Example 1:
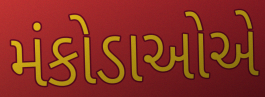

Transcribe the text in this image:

મંકોડાઓએ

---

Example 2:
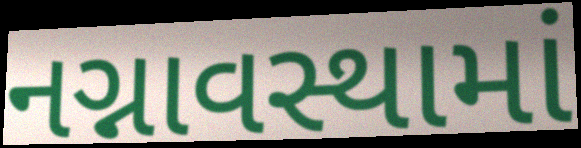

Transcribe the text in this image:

નગ્નાવસ્થામાં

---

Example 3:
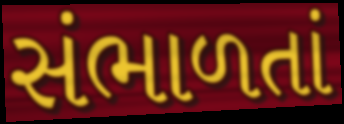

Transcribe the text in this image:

સંભાળતાં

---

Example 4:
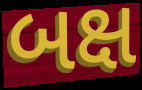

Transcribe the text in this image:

બક્ષ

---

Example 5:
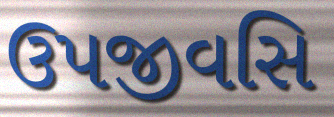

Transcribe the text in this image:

ઉપજીવસિ